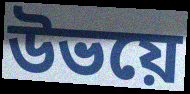
উভয়ে